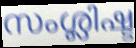
സംശ്ലിഷ്ട